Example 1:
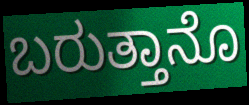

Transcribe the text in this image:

ಬರುತ್ತಾನೊ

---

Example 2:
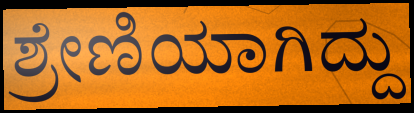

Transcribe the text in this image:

ಶ್ರೇಣಿಯಾಗಿದ್ದು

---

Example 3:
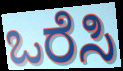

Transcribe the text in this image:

ಒರೆಸಿ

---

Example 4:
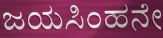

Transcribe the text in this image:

ಜಯಸಿಂಹನೇ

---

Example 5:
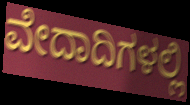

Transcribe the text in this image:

ವೇದಾದಿಗಳಲ್ಲಿ